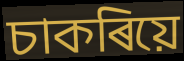
চাকৰিয়ে